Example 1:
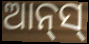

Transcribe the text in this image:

ଆନ୍‌ସ୍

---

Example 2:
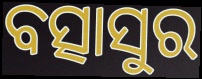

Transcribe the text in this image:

ବତ୍ସାସୁର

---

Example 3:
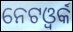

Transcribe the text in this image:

ନେଟଓ୍ବର୍କ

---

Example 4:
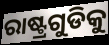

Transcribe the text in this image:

ରାଷ୍ଟ୍ରଗୁଡିକୁ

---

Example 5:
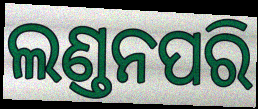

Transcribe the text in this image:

ଲଣ୍ଡନପରି